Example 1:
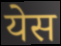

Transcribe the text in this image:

येस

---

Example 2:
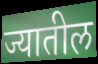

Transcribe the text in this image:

ज्यातील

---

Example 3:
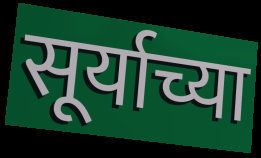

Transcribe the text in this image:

सूर्याच्या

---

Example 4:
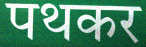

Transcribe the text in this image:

पथकर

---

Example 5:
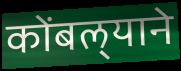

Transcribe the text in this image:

कोंबल्याने